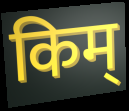
किम्